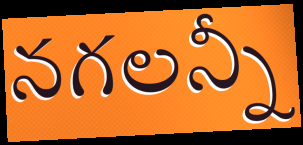
నగలన్నీ